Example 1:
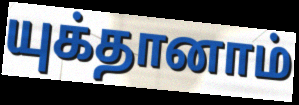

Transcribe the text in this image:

யுக்தானாம்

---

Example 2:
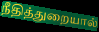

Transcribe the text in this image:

நீதித்துறையால்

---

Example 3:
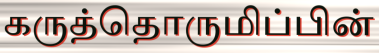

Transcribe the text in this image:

கருத்தொருமிப்பின்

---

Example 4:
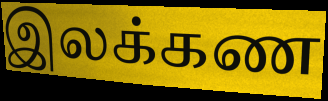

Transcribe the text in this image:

இலக்கண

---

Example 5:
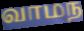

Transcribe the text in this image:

வாமந